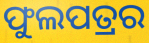
ଫୁଲପତ୍ରର